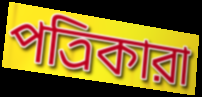
পত্রিকারা